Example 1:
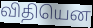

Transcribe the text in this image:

விதியென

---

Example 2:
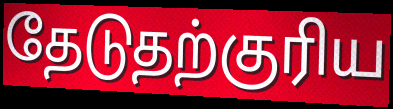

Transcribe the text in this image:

தேடுதற்குரிய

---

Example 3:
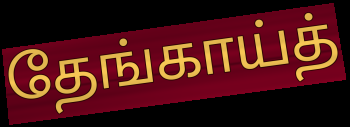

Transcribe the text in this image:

தேங்காய்த்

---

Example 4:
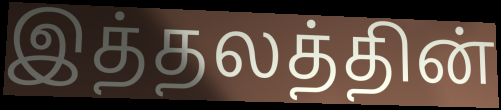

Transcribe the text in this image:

இத்தலத்தின்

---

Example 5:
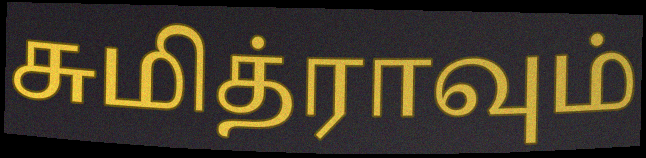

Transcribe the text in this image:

சுமித்ராவும்